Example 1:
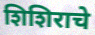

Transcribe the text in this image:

शिशिराचे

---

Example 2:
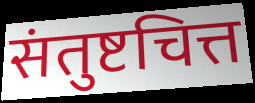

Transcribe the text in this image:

संतुष्टचित्त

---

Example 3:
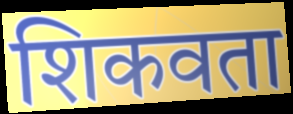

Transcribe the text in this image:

शिकवता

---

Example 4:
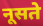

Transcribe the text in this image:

नूसते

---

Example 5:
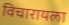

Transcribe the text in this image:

विचारायला